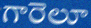
గారెలూ